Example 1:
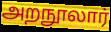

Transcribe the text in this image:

அறநூலார்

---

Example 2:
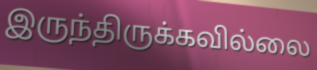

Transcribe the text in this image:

இருந்திருக்கவில்லை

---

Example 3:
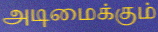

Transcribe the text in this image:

அடிமைக்கும்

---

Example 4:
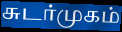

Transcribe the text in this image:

சுடர்முகம்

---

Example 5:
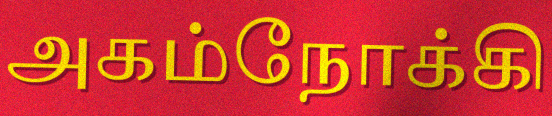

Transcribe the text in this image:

அகம்நோக்கி